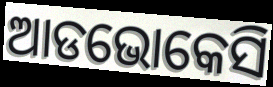
ଆଡଭୋକେସି